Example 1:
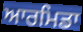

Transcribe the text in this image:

ਆਰਮਿਡਾ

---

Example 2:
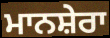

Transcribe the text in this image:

ਮਾਨਸ਼ੇਰਾ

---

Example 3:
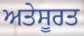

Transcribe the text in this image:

ਅਤੇਸੂਰਤ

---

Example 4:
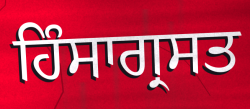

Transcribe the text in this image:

ਹਿੰਸਾਗ੍ਰਸਤ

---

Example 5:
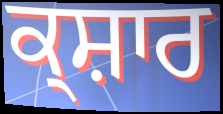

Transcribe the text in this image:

ਕ੍ਸ਼ਾਰ